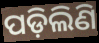
ପଡ଼ିଲିଣି